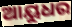
ଆୟୁଧର